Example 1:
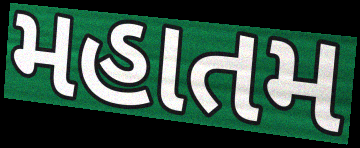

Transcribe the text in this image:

મહાતમ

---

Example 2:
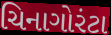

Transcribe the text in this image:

ચિનાગોરંટા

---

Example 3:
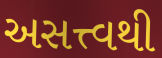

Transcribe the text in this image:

અસત્ત્વથી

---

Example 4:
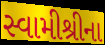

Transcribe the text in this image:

સ્વામીશ્રીના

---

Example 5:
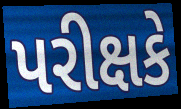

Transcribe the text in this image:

પરીક્ષકે